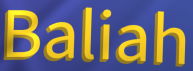
Baliah